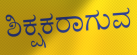
ಶಿಕ್ಷಕರಾಗುವ